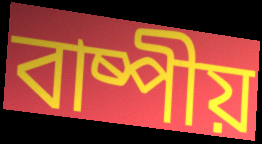
বাষ্পীয়